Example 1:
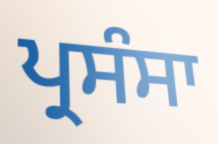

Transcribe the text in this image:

ਪ੍ਰਸੰਸਾ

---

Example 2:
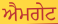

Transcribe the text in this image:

ਐਮਗੇਟ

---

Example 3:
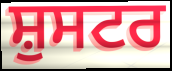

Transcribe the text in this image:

ਸ਼ੁਸਟਰ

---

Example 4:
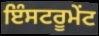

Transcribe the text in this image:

ਇੰਸਟਰੂਮੇਂਟ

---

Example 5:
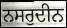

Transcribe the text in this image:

ਨਸਰੁਦੀਨ